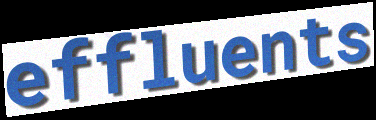
effluents